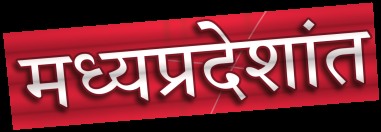
मध्यप्रदेशांत